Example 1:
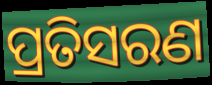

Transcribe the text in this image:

ପ୍ରତିସରଣ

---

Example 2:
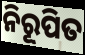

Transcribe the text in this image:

ନିରୂପିତ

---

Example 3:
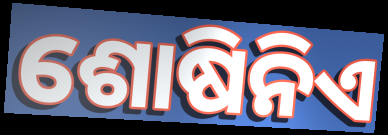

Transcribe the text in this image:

ଶୋଷିନିଏ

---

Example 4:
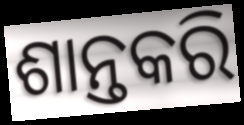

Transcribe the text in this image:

ଶାନ୍ତକରି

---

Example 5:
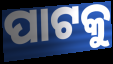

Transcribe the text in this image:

ପାଟକୁ